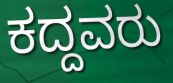
ಕದ್ದವರು